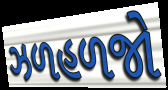
ઝળહળજો